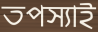
তপস্যাই